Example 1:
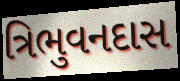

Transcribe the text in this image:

ત્રિભુવનદાસ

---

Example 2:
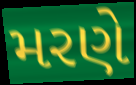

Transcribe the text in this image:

મરણે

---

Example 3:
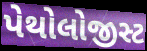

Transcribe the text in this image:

પેથોલોજીસ્ટ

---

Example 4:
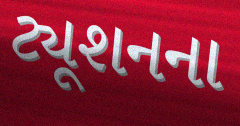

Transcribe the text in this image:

ટ્યૂશનના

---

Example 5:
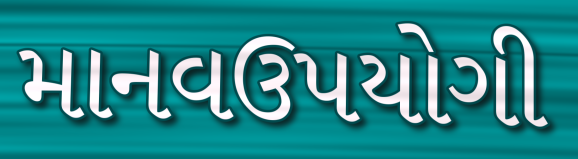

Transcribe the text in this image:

માનવઉપયોગી